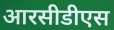
आरसीडीएस